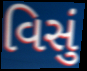
વિસું